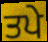
ਤਪੇ